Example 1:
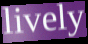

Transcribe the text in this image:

lively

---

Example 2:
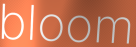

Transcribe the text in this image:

bloom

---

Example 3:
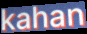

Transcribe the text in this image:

kahan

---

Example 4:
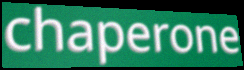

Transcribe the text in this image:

chaperone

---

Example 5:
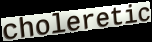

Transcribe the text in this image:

choleretic